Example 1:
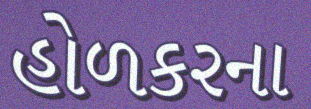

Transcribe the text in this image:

હોળકરના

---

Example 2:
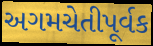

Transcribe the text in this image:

અગમચેતીપૂર્વક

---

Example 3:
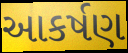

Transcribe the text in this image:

આકર્ષણ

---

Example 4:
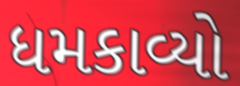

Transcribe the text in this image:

ધમકાવ્યો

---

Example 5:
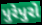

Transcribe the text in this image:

પુરેપુરો